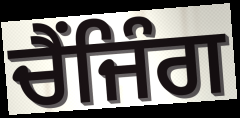
ਚੈਂਜਿੰਗ